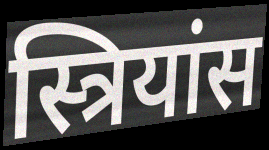
स्त्रियांस